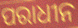
ପରାଧୀନ